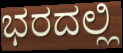
ಭರದಲ್ಲಿ